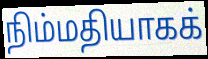
நிம்மதியாகக்